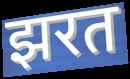
झरत